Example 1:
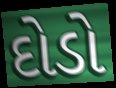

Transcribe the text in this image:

દોડો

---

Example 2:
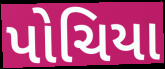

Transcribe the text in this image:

પોચિયા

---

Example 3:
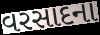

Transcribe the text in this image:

વરસાદના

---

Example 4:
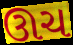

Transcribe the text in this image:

ઊચ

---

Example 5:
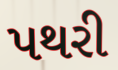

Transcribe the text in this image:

પથરી